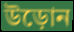
উড়োন